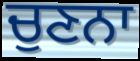
ਚੁਣਨਾ